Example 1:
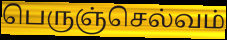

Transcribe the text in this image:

பெருஞ்செல்வம்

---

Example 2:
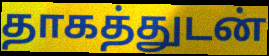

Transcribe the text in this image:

தாகத்துடன்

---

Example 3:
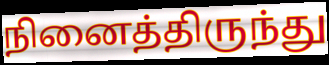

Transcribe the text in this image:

நினைத்திருந்து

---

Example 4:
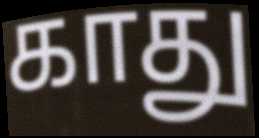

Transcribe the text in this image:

காது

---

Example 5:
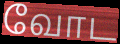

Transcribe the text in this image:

வோட